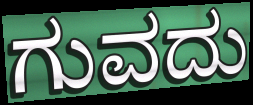
ಗುವದು